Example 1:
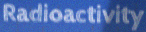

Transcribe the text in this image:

Radioactivity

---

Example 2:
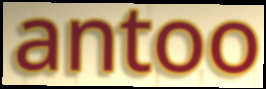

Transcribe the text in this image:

antoo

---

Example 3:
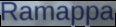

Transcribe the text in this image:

Ramappa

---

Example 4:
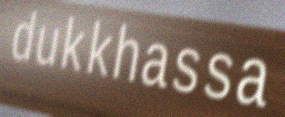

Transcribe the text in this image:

dukkhassa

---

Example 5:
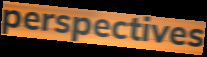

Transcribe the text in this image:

perspectives